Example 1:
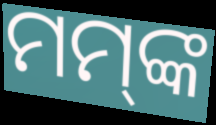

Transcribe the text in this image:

ମମ୍‌ଙ୍କ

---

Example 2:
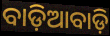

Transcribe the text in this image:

ବାଡ଼ିଆବାଡ଼ି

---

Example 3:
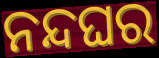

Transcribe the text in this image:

ନନ୍ଦଘର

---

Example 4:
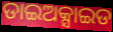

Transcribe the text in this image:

ଡାଇଅକ୍ସାଇଡ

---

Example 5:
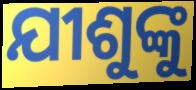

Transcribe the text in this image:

ଯୀଶୁଙ୍କୁ